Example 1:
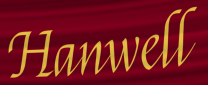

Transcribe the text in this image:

Hanwell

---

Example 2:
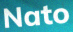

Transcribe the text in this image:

Nato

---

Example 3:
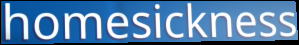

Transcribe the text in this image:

homesickness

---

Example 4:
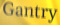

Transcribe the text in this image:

Gantry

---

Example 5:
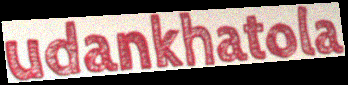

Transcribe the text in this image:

udankhatola